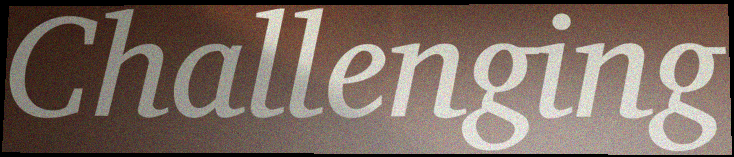
Challenging